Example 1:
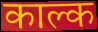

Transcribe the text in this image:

काल्क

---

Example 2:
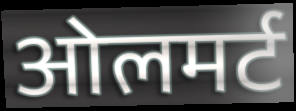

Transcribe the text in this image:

ओलमर्ट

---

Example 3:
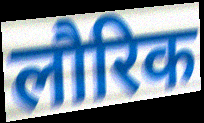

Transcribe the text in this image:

लौरिक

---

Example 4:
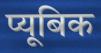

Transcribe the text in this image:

प्यूबिक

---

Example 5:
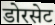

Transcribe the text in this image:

डोरसेट